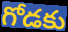
గోడకు